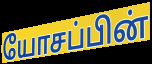
யோசப்பின்